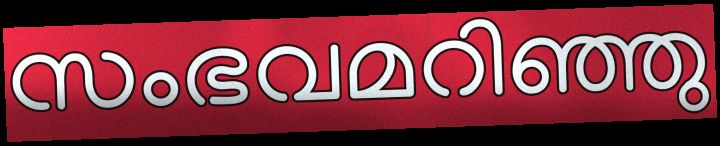
സംഭവമറിഞ്ഞു